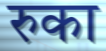
रुका